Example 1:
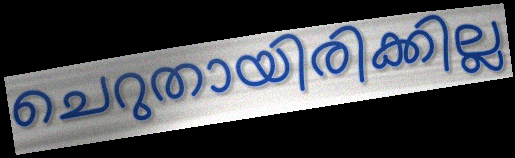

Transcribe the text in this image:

ചെറുതായിരിക്കില്ല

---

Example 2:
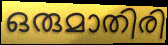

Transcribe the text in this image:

ഒരുമാതിരി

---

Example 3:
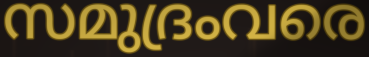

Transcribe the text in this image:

സമുദ്രംവരെ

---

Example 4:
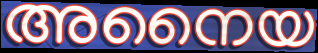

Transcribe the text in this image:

അനൈയ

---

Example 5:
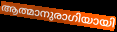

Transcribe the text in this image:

ആത്മാനുരാഗിയായി